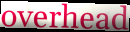
overhead